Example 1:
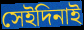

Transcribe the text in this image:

সেইদিনাই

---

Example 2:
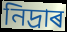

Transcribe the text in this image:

নিদ্ৰাৰ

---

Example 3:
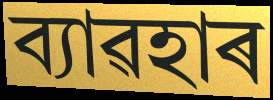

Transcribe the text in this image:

ব্যাৱহাৰ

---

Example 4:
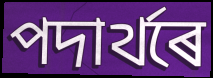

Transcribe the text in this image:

পদাৰ্থৰে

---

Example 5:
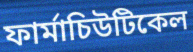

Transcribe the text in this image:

ফাৰ্মাচিউটিকেল